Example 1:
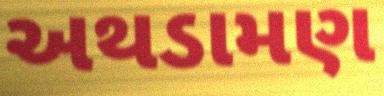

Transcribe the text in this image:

અથડામણ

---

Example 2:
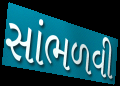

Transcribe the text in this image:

સાંભળવી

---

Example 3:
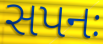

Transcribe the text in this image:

સપનઃ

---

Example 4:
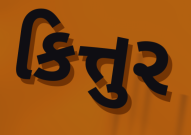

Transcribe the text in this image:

કિત્તુર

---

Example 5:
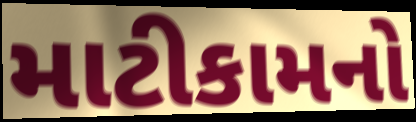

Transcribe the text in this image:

માટીકામનો